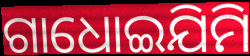
ଗାଧୋଇଯିମି